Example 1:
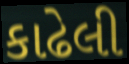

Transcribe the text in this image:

કાઢેલી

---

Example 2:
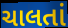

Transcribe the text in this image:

ચાલતાં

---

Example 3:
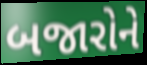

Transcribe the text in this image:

બજારોને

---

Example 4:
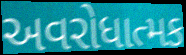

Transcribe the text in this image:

અવરોધાત્મક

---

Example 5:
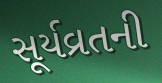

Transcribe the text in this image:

સૂર્યવ્રતની